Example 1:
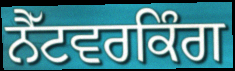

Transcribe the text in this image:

ਨੈੱਟਵਰਕਿੰਗ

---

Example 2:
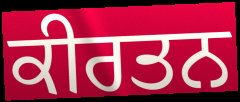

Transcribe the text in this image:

ਕੀਰਤਨ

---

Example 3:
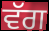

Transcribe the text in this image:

ਵੱਗ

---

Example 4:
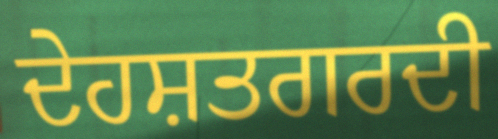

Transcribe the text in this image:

ਦੇਹਸ਼ਤਗਰਦੀ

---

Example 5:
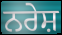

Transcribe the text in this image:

ਨਰੇਸ਼